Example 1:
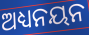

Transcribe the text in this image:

ଅଧ୍ୟନୟନ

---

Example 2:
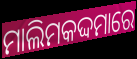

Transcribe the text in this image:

ମାଲିମକଦ୍ଦମାରେ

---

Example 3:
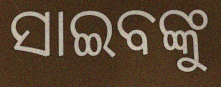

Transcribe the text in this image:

ସାଇବଙ୍କୁ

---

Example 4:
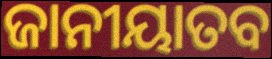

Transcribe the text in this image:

ଜାନୀୟାତବ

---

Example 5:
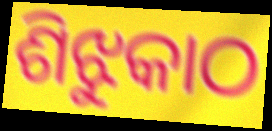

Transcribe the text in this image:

ଶିଝୁକାଠ